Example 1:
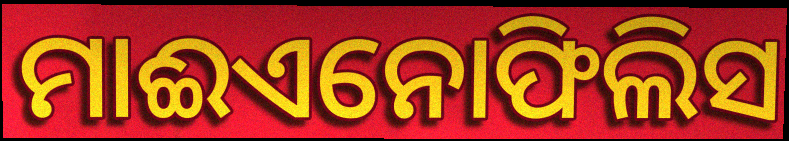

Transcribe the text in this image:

ମାଈଏନୋଫିଲିସ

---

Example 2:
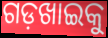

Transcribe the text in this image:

ଗଡ଼ଖାଇକୁ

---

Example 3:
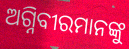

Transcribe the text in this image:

ଅଗ୍ନିବୀରମାନଙ୍କୁ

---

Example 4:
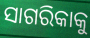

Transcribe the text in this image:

ସାଗରିକାକୁ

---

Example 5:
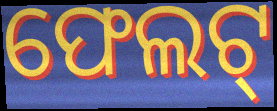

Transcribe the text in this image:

ଫେଲଟ୍